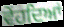
ਵੇਂਹਦਿਆਂ